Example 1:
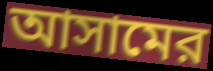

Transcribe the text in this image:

আসামের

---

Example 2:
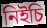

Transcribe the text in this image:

নিইচি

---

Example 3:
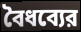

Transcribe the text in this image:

বৈধব্যের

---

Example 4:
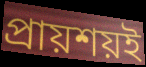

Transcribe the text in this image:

প্রায়শয়ই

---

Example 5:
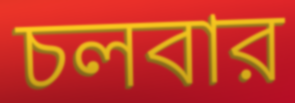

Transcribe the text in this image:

চলবার